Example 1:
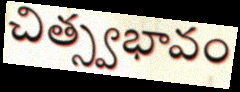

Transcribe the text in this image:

చిత్స్వభావం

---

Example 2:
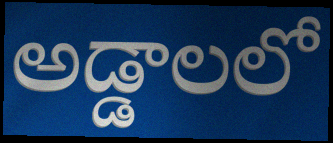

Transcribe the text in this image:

అడ్డాలలో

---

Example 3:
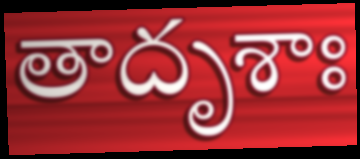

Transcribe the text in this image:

తాదృశాః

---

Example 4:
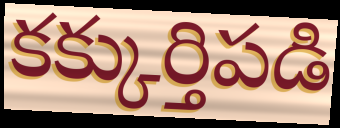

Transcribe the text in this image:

కక్కుర్తిపడి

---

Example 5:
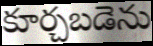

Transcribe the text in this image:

కూర్చబడెను